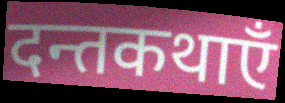
दन्तकथाएँ